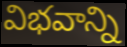
విభవాన్ని